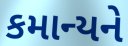
કમાન્યને